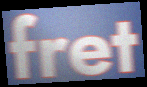
fret